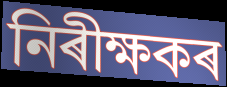
নিৰীক্ষকৰ